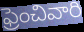
ఫ్రెంచివారి